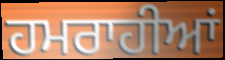
ਹਮਰਾਹੀਆਂ